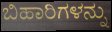
ಬಿಹಾರಿಗಳನ್ನು